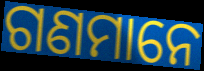
ଗଣମାନେ